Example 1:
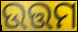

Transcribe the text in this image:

ଉତ୍ତମ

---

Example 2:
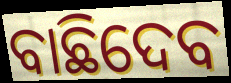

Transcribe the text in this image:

ବାଛିଦେବ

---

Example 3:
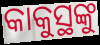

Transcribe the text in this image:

କାକୁସ୍ଥଙ୍କୁ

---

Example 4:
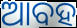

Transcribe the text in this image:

ଆବହ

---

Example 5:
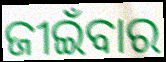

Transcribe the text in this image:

ଜୀଇଁବାର